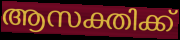
ആസക്തിക്ക്